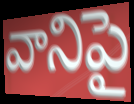
వానిపై